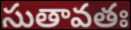
సుతావతః